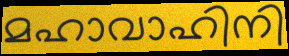
മഹാവാഹിനി